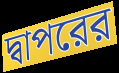
দ্বাপরের